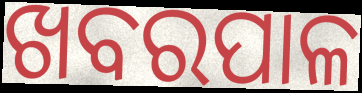
ଖବରପାଳ